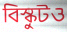
বিস্কুটও